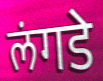
लंगडे